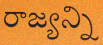
రాజ్యన్ని